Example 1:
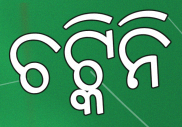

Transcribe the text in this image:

ଚଟ୍କିନି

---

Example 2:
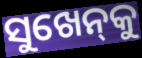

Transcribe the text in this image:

ସୁଖେନ୍‌କୁ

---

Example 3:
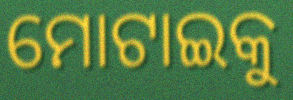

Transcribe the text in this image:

ମୋଟାଇକୁ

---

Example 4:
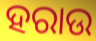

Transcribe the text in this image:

ହରାଉ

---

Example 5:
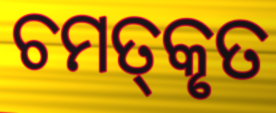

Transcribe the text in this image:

ଚମତ୍‍କୃତ